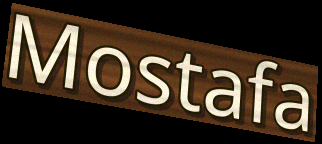
Mostafa